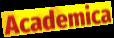
Academica